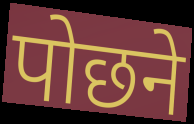
पोछने